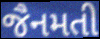
જૈનમતી